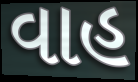
વાહ